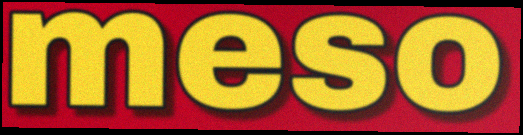
meso